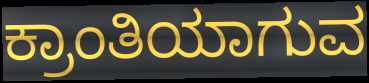
ಕ್ರಾಂತಿಯಾಗುವ